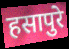
हसापुरे